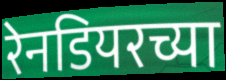
रेनडियरच्या